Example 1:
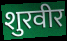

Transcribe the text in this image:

शुरवीर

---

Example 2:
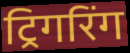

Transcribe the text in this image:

ट्रिगरिंग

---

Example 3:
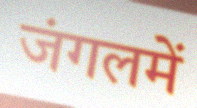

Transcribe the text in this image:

जंगलमें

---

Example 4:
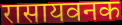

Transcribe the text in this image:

रासायवनक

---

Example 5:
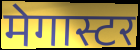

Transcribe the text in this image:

मेगास्टर